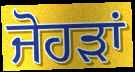
ਜੋਹੜਾਂ